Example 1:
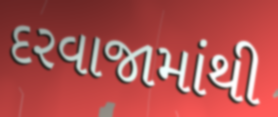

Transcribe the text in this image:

દરવાજામાંથી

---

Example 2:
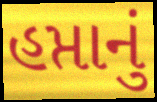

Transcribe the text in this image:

હપ્તાનું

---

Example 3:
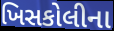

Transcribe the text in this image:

ખિસકોલીના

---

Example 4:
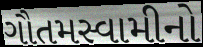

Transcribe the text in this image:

ગૌતમસ્વામીનો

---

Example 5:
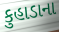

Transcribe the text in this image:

કુહાડાના